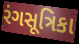
રંગસૂત્રિકા